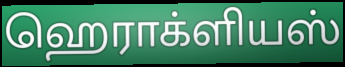
ஹெராக்ளியஸ்